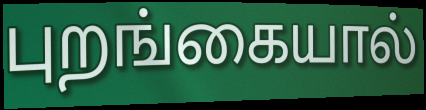
புறங்கையால்